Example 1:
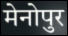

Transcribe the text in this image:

मेनोपुर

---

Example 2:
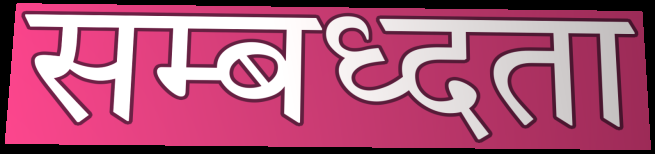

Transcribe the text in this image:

सम्बध्दता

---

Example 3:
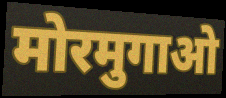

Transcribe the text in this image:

मोरमुगाओ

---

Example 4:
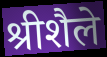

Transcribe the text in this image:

श्रीशैले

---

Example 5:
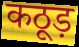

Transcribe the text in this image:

कठूड़